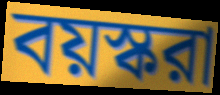
বয়স্করা